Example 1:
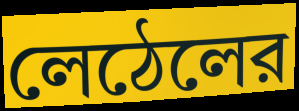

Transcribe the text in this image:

লেঠেলের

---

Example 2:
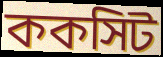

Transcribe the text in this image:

ককসিট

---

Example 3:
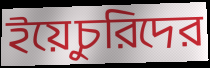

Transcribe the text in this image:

ইয়েচুরিদের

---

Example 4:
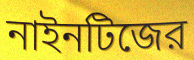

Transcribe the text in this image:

নাইনটিজের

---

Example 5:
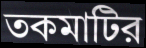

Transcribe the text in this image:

তকমাটির